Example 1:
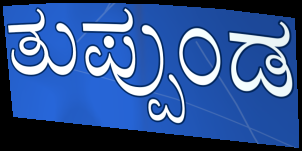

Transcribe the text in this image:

ತುಪ್ಪುಂಡ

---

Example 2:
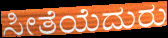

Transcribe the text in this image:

ಸೀತೆಯೆದುರು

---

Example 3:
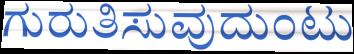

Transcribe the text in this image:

ಗುರುತಿಸುವುದುಂಟು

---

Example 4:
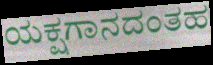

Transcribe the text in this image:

ಯಕ್ಷಗಾನದಂತಹ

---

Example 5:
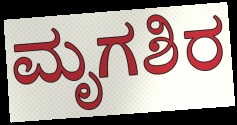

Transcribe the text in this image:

ಮೃಗಶಿರ